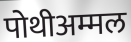
पोथीअम्मल